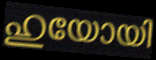
ഹുയോയി